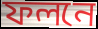
ফলনে